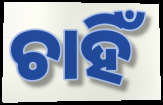
ଚାହିଁ